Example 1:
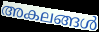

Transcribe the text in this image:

അകലങ്ങൾ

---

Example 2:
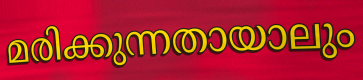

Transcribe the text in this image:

മരിക്കുന്നതായാലും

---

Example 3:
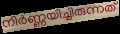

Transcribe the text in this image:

നിർണ്ണയിച്ചിരുന്നത്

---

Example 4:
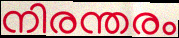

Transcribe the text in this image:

നിരന്തരം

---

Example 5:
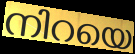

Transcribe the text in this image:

നിറയെ